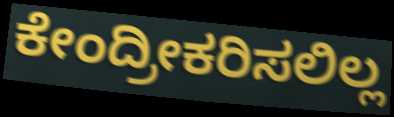
ಕೇಂದ್ರೀಕರಿಸಲಿಲ್ಲ